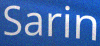
Sarin